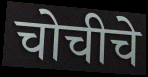
चोचीचे